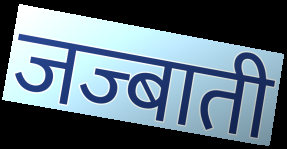
जज्‍बाती